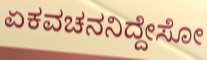
ಏಕವಚನನಿದ್ದೇಸೋ